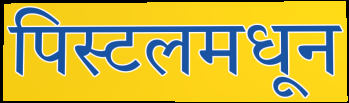
पिस्टलमधून